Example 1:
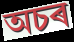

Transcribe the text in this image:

অচৰ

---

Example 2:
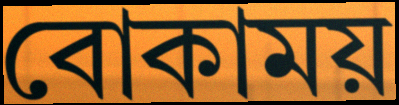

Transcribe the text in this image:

বোকাময়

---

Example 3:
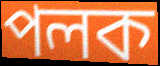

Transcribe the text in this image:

পলক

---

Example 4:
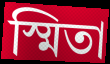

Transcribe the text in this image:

স্মিতা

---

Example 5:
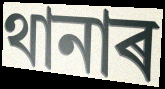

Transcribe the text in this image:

থানাৰ